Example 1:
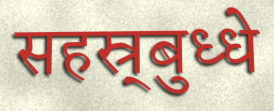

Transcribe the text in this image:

सहस्र्बुध्धे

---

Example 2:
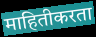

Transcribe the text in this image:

माहितीकरता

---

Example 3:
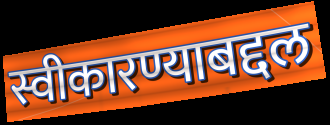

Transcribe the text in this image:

स्वीकारण्याबद्दल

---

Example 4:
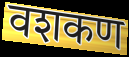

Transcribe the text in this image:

वशकण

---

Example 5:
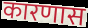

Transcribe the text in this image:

कारणास